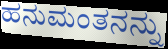
ಹನುಮಂತನನ್ನು